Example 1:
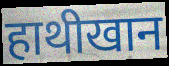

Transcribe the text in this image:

हाथीखान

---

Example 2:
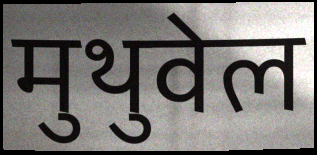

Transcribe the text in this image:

मुथुवेल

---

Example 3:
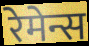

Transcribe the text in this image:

रेमेन्स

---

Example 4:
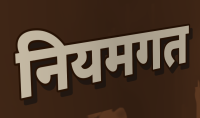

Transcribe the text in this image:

नियमगत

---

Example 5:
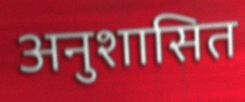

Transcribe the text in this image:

अनुशासित